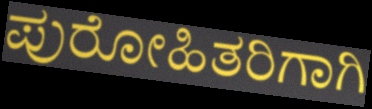
ಪುರೋಹಿತರಿಗಾಗಿ